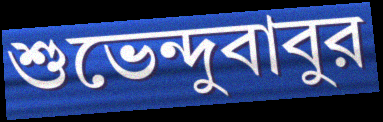
শুভেন্দুবাবুর